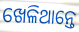
ଖେଳିଥାନ୍ତେ